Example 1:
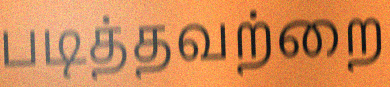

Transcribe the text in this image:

படித்தவற்றை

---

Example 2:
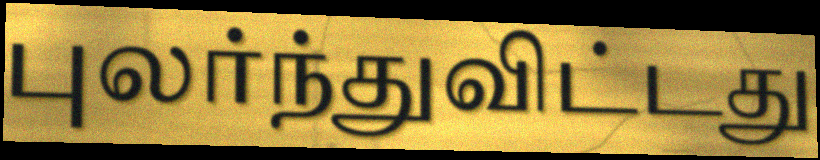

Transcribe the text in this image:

புலர்ந்துவிட்டது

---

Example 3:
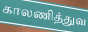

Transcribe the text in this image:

காலணித்துவ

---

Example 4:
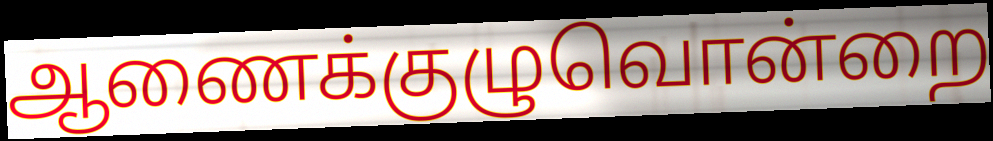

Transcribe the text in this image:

ஆணைக்குழுவொன்றை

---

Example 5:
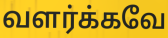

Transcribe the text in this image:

வளர்க்கவே